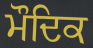
ਮੌਦਿਕ